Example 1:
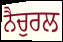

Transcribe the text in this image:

ਨੈਚੁਰਲ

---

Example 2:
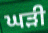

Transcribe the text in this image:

ਘਡ਼ੀ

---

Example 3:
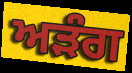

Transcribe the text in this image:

ਅੜੰਗ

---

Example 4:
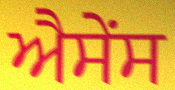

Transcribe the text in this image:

ਐਸੇਂਸ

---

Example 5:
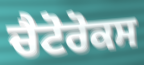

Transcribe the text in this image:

ਚੈਟੋਰੋਕਸ